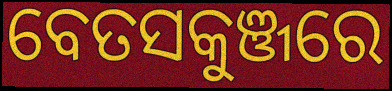
ବେତସକୁଞ୍ଜରେ